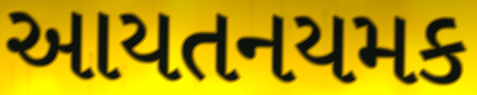
આયતનયમક